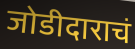
जोडीदाराचं